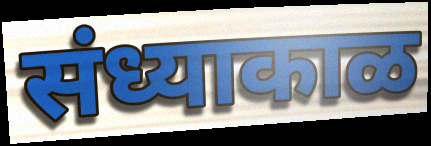
संध्याकाळ